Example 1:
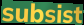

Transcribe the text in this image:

subsist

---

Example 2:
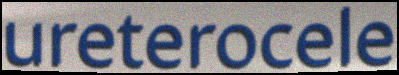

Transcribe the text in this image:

ureterocele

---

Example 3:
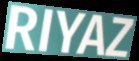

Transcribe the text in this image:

RIYAZ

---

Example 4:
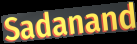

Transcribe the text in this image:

Sadanand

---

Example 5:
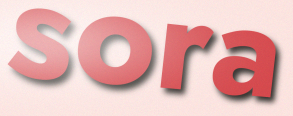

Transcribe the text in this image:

sora